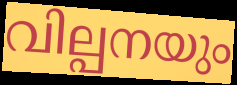
വില്പനയും